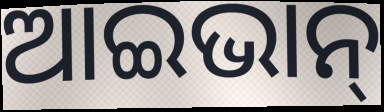
ଆଇଭାନ୍